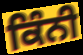
ਕਿੰਨੀ